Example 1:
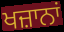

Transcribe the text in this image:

ਖਜ਼ਾਨਾਂ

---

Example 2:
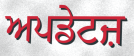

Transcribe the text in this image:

ਅਪਡੇਟਜ਼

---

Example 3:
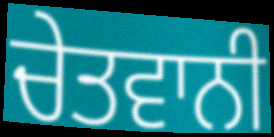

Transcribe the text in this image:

ਚੇਤਵਾਨੀ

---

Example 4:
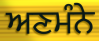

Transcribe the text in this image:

ਅਣਮੰਨੇ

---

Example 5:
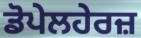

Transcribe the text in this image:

ਡੋਪੇਲਹੇਰਜ਼